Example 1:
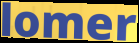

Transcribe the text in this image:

lomer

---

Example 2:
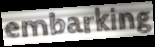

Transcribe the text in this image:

embarking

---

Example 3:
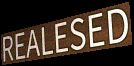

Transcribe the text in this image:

REALESED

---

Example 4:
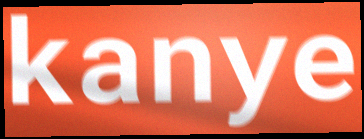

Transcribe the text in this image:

kanye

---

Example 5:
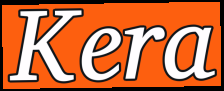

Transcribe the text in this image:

Kera